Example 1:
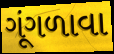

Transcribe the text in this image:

ગૂંગળાવા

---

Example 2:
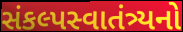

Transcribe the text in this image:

સંકલ્પસ્વાતંત્ર્યનો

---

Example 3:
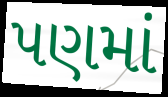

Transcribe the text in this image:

પણમાં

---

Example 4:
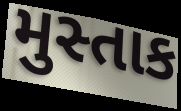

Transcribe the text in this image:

મુસ્તાક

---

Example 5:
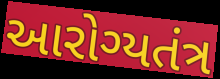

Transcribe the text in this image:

આરોગ્યતંત્ર